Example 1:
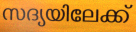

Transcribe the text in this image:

സദ്യയിലേക്ക്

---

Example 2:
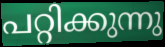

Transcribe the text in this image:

പറ്റിക്കുന്നു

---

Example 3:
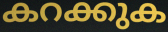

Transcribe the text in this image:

കറക്കുക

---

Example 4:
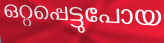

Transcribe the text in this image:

ഒറ്റപ്പെട്ടുപോയ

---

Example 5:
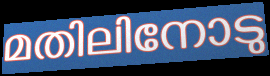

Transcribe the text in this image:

മതിലിനോടു